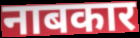
नाबकार